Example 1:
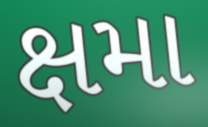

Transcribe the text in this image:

ક્ષમા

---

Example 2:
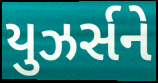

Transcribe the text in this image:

યુઝર્સને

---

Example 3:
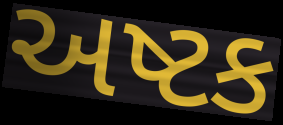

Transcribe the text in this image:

અષ્ટક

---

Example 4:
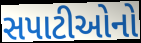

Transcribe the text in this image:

સપાટીઓનો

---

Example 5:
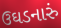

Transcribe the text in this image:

ઉઘડનારું